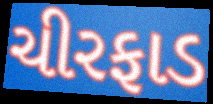
ચીરફાડ